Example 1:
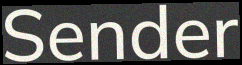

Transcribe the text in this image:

Sender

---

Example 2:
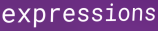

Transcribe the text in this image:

expressions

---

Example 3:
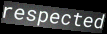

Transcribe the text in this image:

respected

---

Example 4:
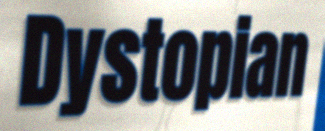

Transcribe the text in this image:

Dystopian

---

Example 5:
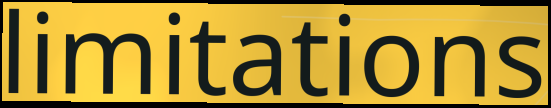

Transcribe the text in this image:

limitations